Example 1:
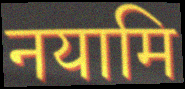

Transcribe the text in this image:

नयामि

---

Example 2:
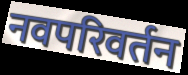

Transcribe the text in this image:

नवपरिवर्तन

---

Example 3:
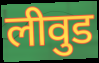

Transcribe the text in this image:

लीवुड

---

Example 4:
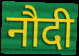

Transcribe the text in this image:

नौदी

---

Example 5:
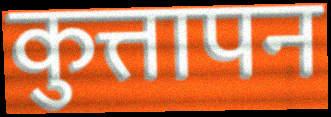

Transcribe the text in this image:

कुत्तापन